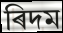
ৰিদম